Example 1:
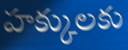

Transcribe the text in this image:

హక్కులకు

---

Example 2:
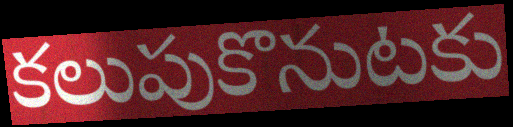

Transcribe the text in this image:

కలుపుకొనుటకు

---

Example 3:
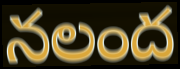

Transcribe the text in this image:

నలంద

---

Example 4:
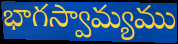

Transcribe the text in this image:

భాగస్వామ్యము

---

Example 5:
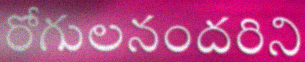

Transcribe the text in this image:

రోగులనందరిని